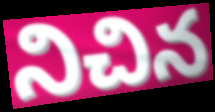
నిచిన